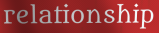
relationship